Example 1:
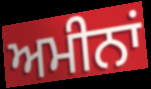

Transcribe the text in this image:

ਅਮੀਨਾਂ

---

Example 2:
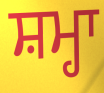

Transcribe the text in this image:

ਸ਼ਮ੍ਹਾ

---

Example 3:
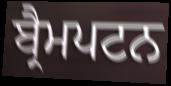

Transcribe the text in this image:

ਬ੍ਰੈਮਪਟਨ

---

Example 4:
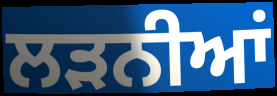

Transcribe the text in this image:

ਲੜਨੀਆਂ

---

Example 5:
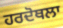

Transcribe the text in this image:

ਹਰਦੋਥਲਾ